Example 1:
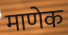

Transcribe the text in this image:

माणेक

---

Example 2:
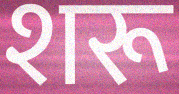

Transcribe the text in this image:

शरू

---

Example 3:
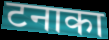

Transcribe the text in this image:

टनाका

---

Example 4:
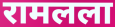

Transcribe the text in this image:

रामलला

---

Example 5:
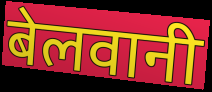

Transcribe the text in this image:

बेलवानी